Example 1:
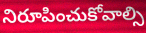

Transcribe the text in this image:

నిరూపించుకోవాల్సి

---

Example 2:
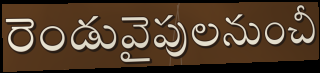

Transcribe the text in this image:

రెండువైపులనుంచీ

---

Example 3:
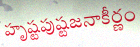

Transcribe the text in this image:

హృష్టపుష్టజనాకీర్ణం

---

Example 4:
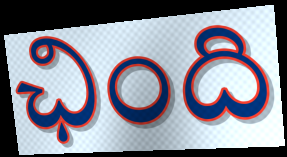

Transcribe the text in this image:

ఛింది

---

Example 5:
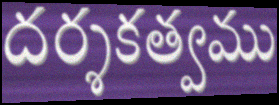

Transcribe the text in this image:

దర్శకత్వము